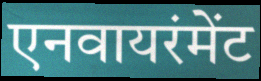
एनवायरंमेंट